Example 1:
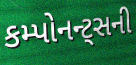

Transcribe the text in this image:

કમ્પોનન્ટ્સની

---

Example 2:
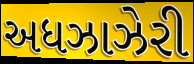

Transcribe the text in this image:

અધઝાઝેરી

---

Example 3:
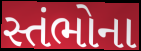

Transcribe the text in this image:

સ્તંભોના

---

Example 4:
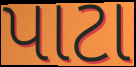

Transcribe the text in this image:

પાટા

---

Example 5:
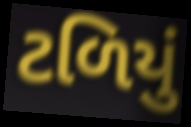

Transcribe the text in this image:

ટળિયું